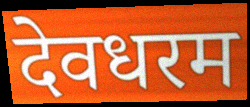
देवधरम